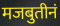
मजबुतीनं